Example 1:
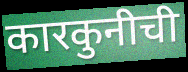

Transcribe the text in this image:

कारकुनीची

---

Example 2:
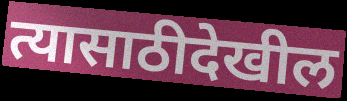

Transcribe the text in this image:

त्यासाठीदेखील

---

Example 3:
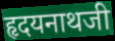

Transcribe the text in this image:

हृदयनाथजी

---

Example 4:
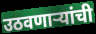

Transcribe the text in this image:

उठवणाऱ्यांची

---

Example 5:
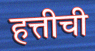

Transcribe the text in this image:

हत्तीची